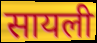
सायली